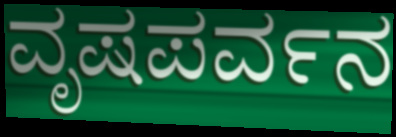
ವೃಷಪರ್ವನ